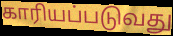
காரியப்படுவது